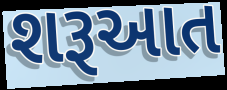
શરૂઆત